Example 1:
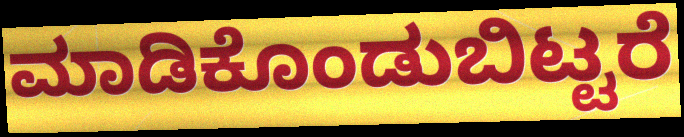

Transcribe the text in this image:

ಮಾಡಿಕೊಂಡುಬಿಟ್ಟರೆ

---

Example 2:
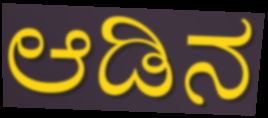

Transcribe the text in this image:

ಆಡಿನ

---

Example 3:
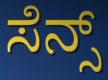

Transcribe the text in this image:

ಸೆನ್ಸ್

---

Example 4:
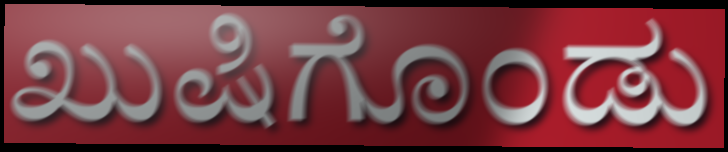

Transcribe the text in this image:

ಖುಷಿಗೊಂಡು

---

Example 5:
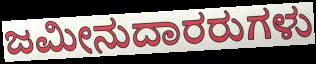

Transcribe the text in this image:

ಜಮೀನುದಾರರುಗಳು